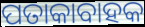
ପତାକାବାହକ